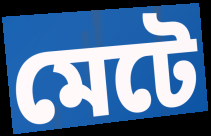
মেটে